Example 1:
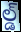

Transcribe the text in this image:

ల్డ్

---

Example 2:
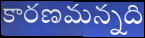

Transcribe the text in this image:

కారణమన్నది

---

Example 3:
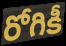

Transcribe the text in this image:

రోగికీ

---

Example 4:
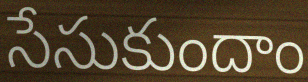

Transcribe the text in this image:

సేసుకుందాం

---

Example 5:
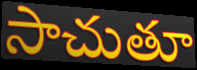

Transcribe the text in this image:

సాచుతూ